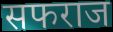
सफराज